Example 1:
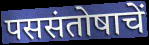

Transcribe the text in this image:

पससंतोषाचें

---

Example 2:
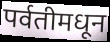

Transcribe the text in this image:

पर्वतीमधून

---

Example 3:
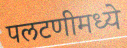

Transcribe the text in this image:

पलटणीमध्ये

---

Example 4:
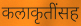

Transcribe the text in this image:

कलाकृतींसह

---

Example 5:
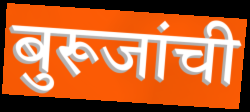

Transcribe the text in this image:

बुरूजांची